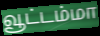
வூட்டம்மா